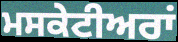
ਮਸਕੇਟੀਅਰਾਂ